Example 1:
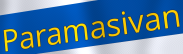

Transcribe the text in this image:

Paramasivan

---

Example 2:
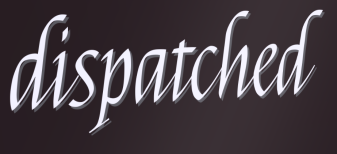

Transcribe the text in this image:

dispatched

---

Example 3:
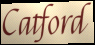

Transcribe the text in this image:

Catford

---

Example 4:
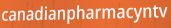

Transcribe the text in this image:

canadianpharmacyntv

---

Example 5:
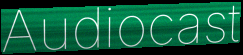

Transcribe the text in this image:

Audiocast